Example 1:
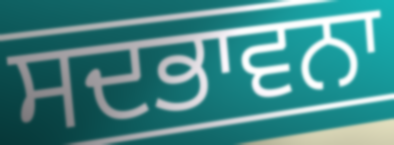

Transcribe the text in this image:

ਸਦਭਾਵਨਾ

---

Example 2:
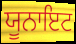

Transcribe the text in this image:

ਯੂਨਾਇਟ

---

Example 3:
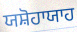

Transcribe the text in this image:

ਯਸ਼ੋਹਾਯਾਹ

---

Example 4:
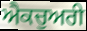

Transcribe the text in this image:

ਐਕਚੁਅਰੀ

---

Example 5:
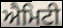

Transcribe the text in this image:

ਐਮਿਟੀ